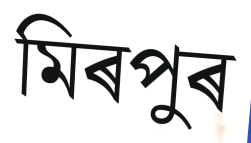
মিৰপুৰ